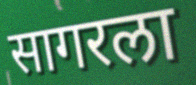
सागरला